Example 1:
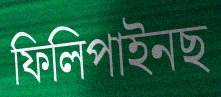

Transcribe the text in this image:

ফিলিপাইনছ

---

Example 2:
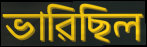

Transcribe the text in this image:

ভাৱিছিল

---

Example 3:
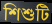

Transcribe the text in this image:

শিশুটি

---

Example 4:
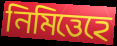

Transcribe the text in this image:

নিমিত্তেহে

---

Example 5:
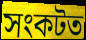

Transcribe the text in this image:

সংকটত